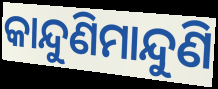
କାନ୍ଦୁଣିମାନ୍ଦୁଣି